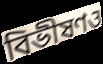
বিভীষণও